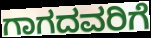
ಗಾಗದವರಿಗೆ